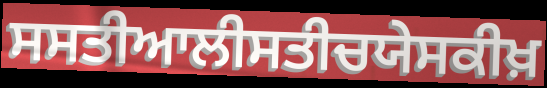
ਸਸਤੀਆਲੀਸਤੀਚਯੇਸਕੀਖ਼